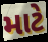
માટે